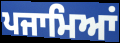
ਪਜਾਮਿਆਂ